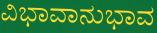
ವಿಭಾವಾನುಭಾವ